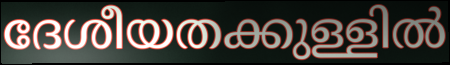
ദേശീയതക്കുള്ളിൽ